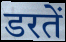
डरतें